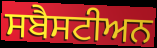
ਸਬੈਸਟੀਅਨ